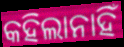
କହିଲାନାହିଁ